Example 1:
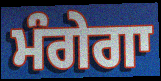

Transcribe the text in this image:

ਮੰਗੇਗਾ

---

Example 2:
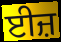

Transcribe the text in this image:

ਈਜ਼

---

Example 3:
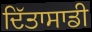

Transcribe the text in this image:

ਦਿੱਤਾਸਾਡੀ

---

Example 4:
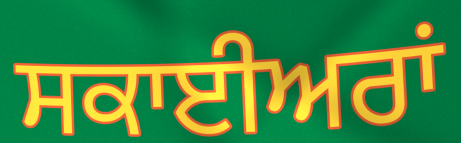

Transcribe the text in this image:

ਸਕਾਈਅਰਾਂ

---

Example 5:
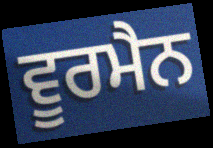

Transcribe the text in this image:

ਵੂਰਮੈਨ